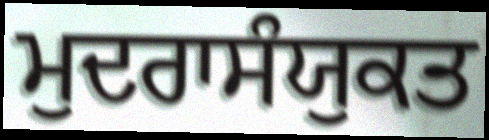
ਮੁਦਰਾਸੰਯੁਕਤ